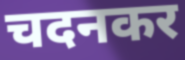
चदनकर